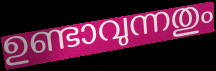
ഉണ്ടാവുന്നതും